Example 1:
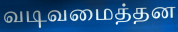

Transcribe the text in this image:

வடிவமைத்தன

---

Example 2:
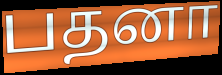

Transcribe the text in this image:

பதனா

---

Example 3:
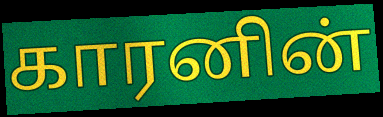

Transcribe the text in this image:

காரனின்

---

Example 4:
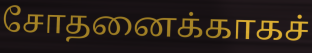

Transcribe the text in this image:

சோதனைக்காகச்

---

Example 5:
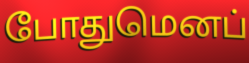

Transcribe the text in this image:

போதுமெனப்